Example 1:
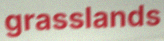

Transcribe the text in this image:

grasslands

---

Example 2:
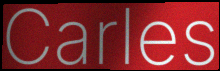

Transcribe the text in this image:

Carles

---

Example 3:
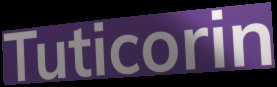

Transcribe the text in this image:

Tuticorin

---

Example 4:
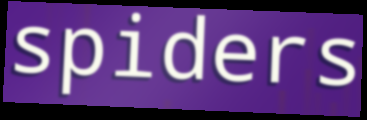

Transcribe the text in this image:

spiders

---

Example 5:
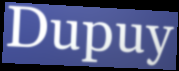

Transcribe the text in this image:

Dupuy